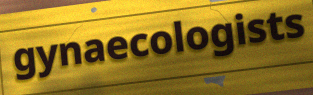
gynaecologists